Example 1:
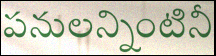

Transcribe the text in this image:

పనులన్నింటినీ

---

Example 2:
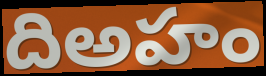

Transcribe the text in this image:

దిఅహం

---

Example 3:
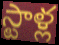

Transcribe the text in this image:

స్టాళ్ల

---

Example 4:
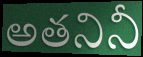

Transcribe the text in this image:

అతనినీ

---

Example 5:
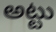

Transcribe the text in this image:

అట్టు